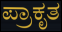
ಪ್ರಾಕೃತ